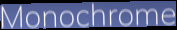
Monochrome